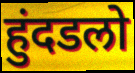
हुंदडलो